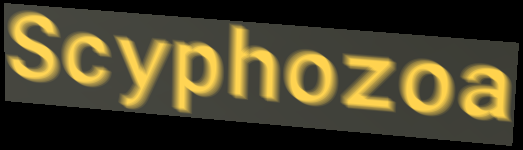
Scyphozoa